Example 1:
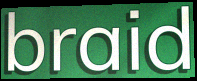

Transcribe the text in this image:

braid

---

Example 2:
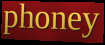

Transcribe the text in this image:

phoney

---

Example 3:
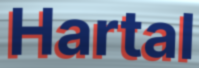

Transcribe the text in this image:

Hartal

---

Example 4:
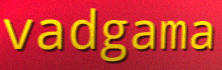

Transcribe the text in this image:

vadgama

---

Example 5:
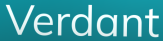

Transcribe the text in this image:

Verdant